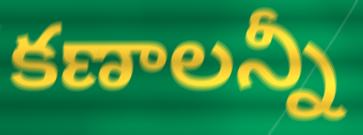
కణాలన్నీ